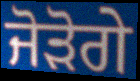
ਜੋੜੋਗੇ